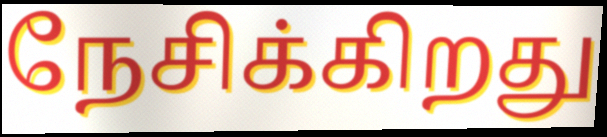
நேசிக்கிறது